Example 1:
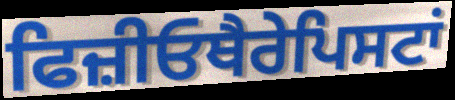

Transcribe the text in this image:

ਫਿਜ਼ੀਓਥੈਰੇਪਿਸਟਾਂ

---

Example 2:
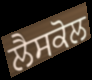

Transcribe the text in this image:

ਲੈਸਕੋਲ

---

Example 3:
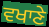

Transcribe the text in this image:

ਵਖਾਣੇ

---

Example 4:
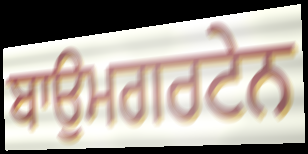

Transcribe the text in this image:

ਬਾਉਮਗਰਟੇਨ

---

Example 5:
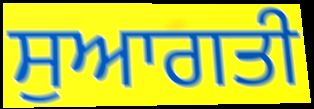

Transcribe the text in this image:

ਸੁਆਗਤੀ